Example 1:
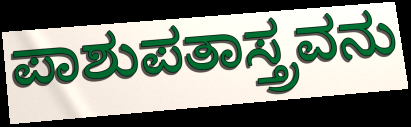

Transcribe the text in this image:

ಪಾಶುಪತಾಸ್ತ್ರವನು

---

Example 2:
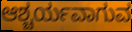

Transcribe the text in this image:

ಆಶ್ಚರ್ಯವಾಗುವ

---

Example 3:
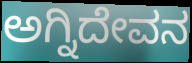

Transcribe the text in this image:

ಅಗ್ನಿದೇವನ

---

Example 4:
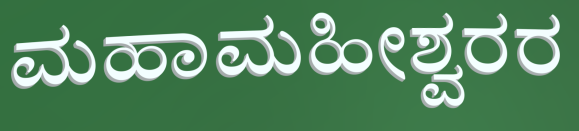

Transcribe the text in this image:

ಮಹಾಮಹೀಶ್ವರರ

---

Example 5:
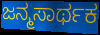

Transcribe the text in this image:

ಜನ್ಮಸಾರ್ಥಕ